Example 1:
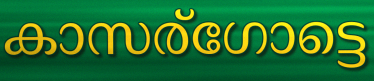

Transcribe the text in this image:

കാസര്ഗോട്ടെ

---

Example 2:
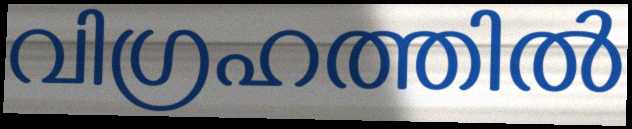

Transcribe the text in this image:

വിഗ്രഹത്തിൽ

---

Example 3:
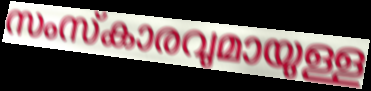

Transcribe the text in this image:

സംസ്‌കാരവുമായുള്ള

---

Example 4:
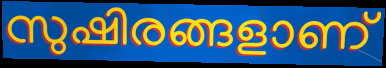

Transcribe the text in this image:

സുഷിരങ്ങളാണ്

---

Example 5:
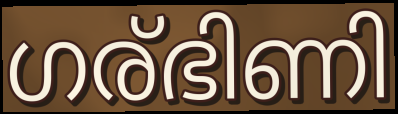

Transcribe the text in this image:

ഗര്ഭിണി